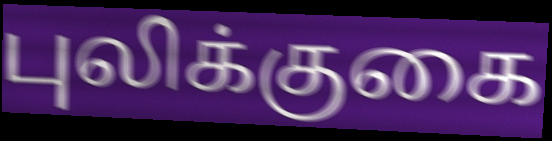
புலிக்குகை